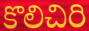
కొలిచిరి